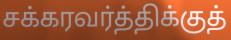
சக்கரவர்த்திக்குத்